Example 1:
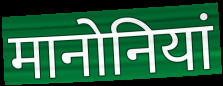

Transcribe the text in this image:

मानोनियां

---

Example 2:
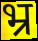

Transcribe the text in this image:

भ्र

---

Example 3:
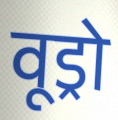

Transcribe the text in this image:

वूड्रो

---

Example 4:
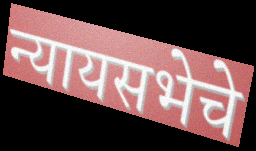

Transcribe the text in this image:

न्यायसभेचे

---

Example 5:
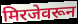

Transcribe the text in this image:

मिरजेवरून